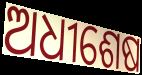
ଅଧୀଶେଷ